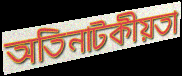
অতিনাটকীয়তা